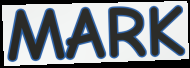
MARK